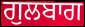
ਗੁਲਬਾਗ